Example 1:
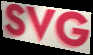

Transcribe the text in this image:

SVG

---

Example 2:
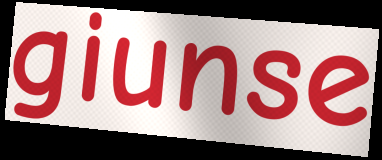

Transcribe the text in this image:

giunse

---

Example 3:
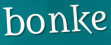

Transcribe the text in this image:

bonke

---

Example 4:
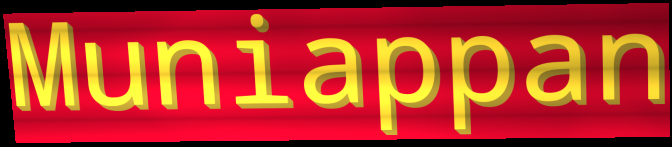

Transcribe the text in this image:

Muniappan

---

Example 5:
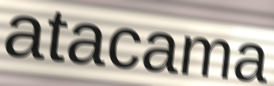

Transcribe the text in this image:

atacama